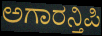
ಅಗಾರನ್ತಿಪಿ